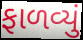
ફાળવ્યું